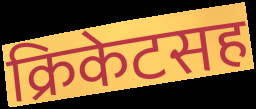
क्रिकेटसह